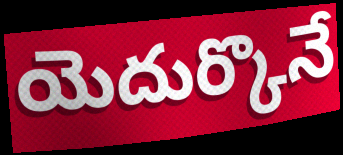
యెదుర్కొనే